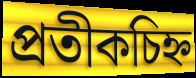
প্ৰতীকচিহ্ন